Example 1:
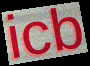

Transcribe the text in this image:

icb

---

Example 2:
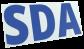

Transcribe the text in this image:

SDA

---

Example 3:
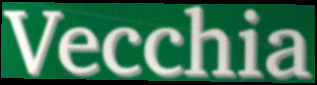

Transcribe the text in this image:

Vecchia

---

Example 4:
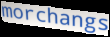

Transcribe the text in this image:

morchangs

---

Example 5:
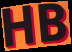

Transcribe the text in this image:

HB